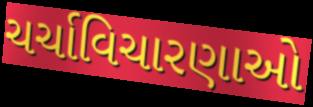
ચર્ચાવિચારણાઓ